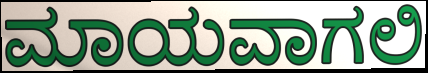
ಮಾಯವಾಗಲಿ